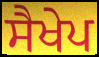
ਸੈਖੇਪ